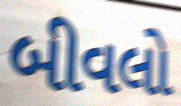
બીવલો